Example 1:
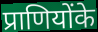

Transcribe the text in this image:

प्राणियोंके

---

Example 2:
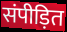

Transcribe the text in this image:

संपीड़ित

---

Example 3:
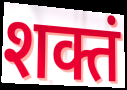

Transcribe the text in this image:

शक्तं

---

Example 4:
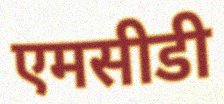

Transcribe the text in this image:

एमसीडी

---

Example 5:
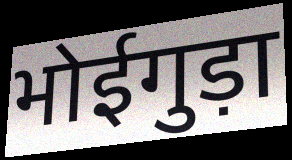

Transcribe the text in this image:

भोईगुड़ा